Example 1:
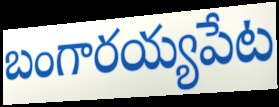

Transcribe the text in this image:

బంగారయ్యపేట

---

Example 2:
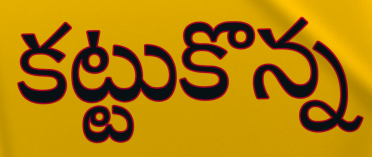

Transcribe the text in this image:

కట్టుకొన్న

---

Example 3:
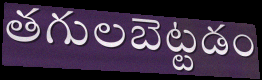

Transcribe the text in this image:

తగులబెట్టడం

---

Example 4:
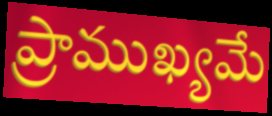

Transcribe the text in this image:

ప్రాముఖ్యమే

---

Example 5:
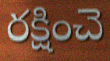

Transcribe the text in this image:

రక్షించె